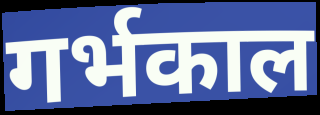
गर्भकाल